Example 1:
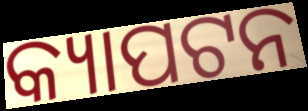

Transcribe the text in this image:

କ୍ୟାପଟନ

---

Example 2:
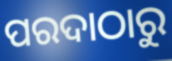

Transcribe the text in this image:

ପରଦାଠାରୁ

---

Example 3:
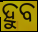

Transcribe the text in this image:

ହୁବ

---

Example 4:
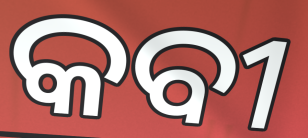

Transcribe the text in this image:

କବୀ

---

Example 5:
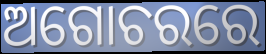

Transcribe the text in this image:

ଅଗୋଚରରେ